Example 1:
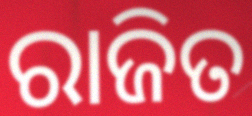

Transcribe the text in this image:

ରାଜିତ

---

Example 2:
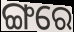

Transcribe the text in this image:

ଙ୍ଗରେ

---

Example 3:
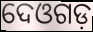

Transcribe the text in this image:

ଦେଓଗଡ଼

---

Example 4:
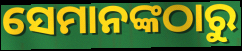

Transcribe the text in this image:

ସେମାନଙ୍କଠାରୁ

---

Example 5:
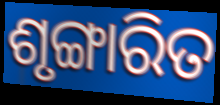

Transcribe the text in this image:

ଶୃଙ୍ଗାରିତ